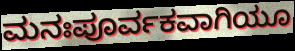
ಮನಃಪೂರ್ವಕವಾಗಿಯೂ